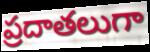
ప్రదాతలుగా